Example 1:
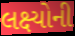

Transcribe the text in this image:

લક્ષ્યોની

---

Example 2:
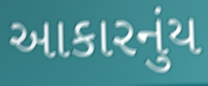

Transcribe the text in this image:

આકારનુંય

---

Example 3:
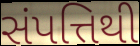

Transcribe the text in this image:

સંપત્તિથી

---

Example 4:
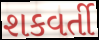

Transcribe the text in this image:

શકવર્તી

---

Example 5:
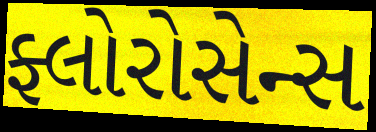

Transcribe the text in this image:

ફ્લોરોસેન્સ